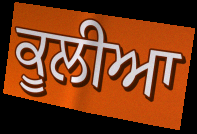
ਕੂਲੀਆ